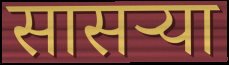
सासर्‍या